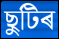
ছুটিৰ